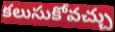
కలుసుకోవచ్చు